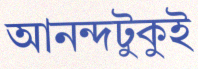
আনন্দটুকুই